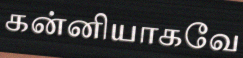
கன்னியாகவே